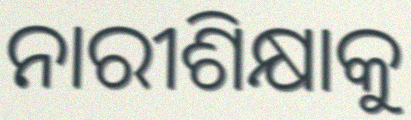
ନାରୀଶିକ୍ଷାକୁ